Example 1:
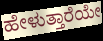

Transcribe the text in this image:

ಹೇಳುತ್ತಾರೆಯೇ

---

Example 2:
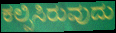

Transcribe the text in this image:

ಕಲ್ಪಿಸಿರುವುದು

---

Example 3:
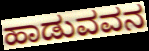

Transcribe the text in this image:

ಹಾಡುವವನ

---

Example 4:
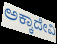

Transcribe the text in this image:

ಅಕ್ಕಾದೇವಿ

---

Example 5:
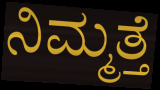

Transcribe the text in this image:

ನಿಮ್ಮತ್ತೆ